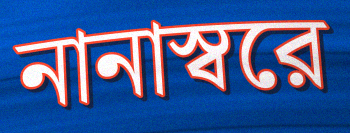
নানাস্বরে